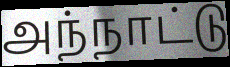
அந்நாட்டு